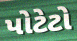
પોટેટો